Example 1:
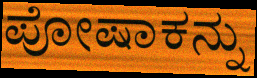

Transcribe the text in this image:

ಪೋಷಾಕನ್ನು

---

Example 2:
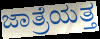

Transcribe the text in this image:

ಜಾತ್ರೆಯತ್ತ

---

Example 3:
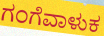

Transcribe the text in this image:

ಗಂಗೆವಾಳುಕ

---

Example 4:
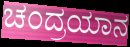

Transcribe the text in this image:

ಚಂದ್ರಯಾನ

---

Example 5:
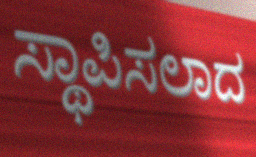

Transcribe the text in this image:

ಸ್ಥಾಪಿಸಲಾದ